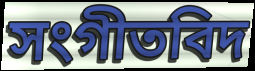
সংগীতবিদ